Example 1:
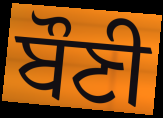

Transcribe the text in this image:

ਬੌਣੀ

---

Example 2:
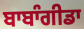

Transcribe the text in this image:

ਬਾਬਾੰਗੀਡਾ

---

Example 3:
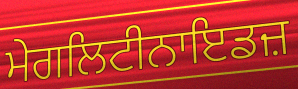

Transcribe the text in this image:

ਮੇਗਲਿਟੀਨਾਇਡਜ਼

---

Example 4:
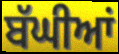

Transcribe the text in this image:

ਬੱਘੀਆਂ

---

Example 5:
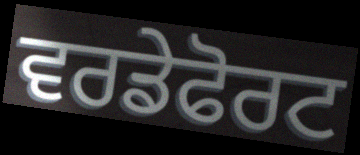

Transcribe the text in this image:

ਵਰਡੇਫੋਰਟ